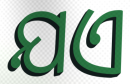
ଯଏ